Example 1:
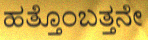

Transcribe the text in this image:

ಹತ್ತೊಂಬತ್ತನೇ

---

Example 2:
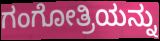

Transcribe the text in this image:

ಗಂಗೋತ್ರಿಯನ್ನು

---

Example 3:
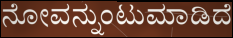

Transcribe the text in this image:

ನೋವನ್ನುಂಟುಮಾಡಿದೆ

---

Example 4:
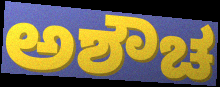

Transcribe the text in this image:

ಅಶೌಚ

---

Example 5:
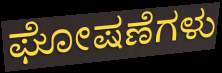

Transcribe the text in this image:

ಘೋಷಣೆಗಳು